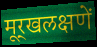
मूर्खलक्षणें